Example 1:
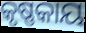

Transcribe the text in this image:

କୃଷ୍ଣକାୟ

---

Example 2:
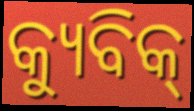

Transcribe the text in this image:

କ୍ୟୁବିକ୍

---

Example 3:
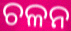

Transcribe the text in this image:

ଚଳନ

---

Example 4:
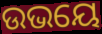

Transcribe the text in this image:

ଉଭୟେ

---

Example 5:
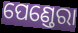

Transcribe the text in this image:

ପେଣ୍ଡେରା